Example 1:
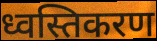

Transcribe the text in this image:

ध्वस्तिकरण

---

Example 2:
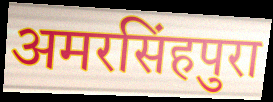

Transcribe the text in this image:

अमरसिंहपुरा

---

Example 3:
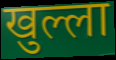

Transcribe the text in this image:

खुल्ला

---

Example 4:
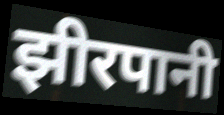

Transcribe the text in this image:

झीरपानी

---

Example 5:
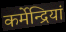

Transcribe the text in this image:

कर्मेन्द्रियां